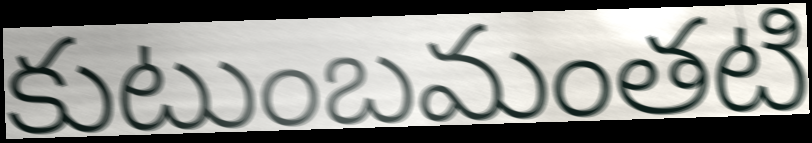
కుటుంబమంతటి